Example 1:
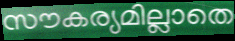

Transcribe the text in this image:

സൗകര്യമില്ലാതെ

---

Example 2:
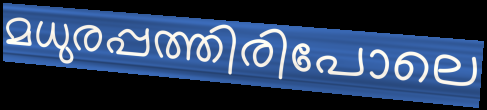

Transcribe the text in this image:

മധുരപ്പത്തിരിപോലെ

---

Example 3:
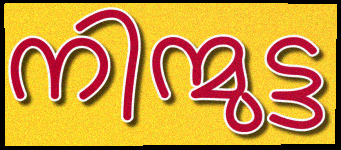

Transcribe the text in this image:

നിന്മുട്ട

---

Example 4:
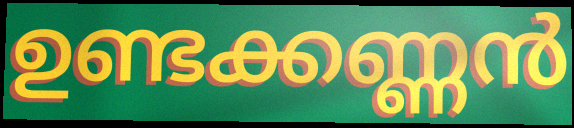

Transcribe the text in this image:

ഉണ്ടക്കണ്ണൻ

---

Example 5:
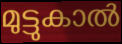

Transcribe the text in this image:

മുട്ടുകാൽ